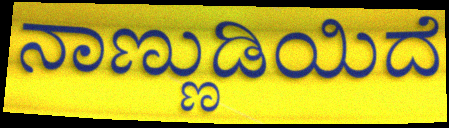
ನಾಣ್ಣುಡಿಯಿದೆ